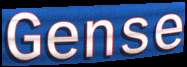
Gense